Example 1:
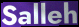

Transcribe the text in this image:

Salleh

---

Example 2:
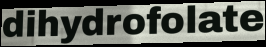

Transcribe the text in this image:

dihydrofolate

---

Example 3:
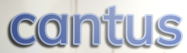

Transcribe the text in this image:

cantus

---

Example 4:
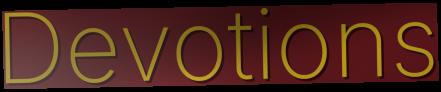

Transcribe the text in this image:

Devotions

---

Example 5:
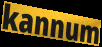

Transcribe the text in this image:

kannum